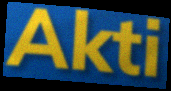
Akti